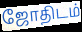
ஜோதிடம்